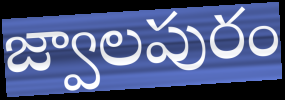
జ్వాలపురం